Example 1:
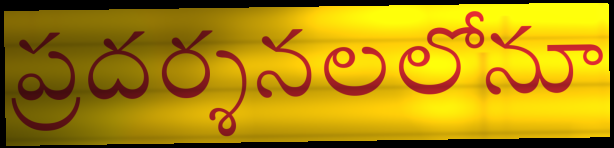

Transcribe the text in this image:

ప్రదర్శనలలోనూ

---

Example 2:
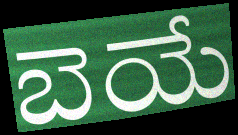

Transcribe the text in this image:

బెయే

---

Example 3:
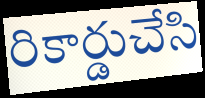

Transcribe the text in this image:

రికార్డుచేసి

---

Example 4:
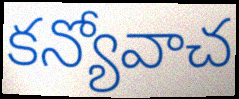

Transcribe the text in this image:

కన్యోవాచ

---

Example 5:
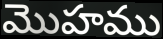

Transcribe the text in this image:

మొహము